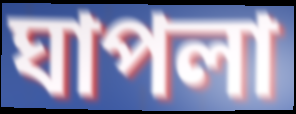
ঘাপলা